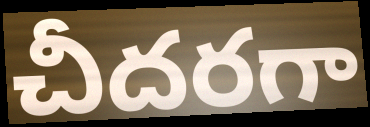
చీదరగా